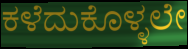
ಕಳೆದುಕೊಳ್ಳಲೇ